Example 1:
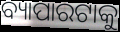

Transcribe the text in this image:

ବ୍ୟାପାରଟାକୁ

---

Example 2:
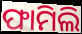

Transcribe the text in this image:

ଫାମିଲି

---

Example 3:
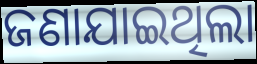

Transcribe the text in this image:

ଜଣାଯାଇଥିଲା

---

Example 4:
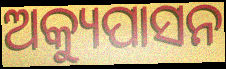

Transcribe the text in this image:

ଅକ୍ୟୁପାସନ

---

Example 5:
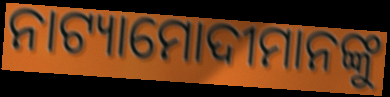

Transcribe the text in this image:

ନାଟ୍ୟାମୋଦୀମାନଙ୍କୁ